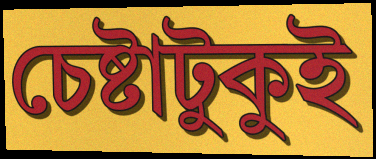
চেষ্টাটুকুই